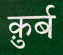
क़ुर्ब